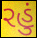
રહું